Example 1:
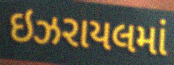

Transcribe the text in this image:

ઇઝરાયલમાં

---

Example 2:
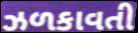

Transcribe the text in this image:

ઝળકાવતી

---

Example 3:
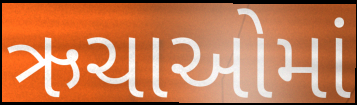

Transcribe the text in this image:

ઋચાઓમાં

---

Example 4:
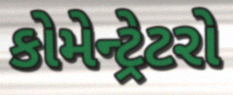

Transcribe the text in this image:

કોમેન્ટ્રેટરો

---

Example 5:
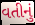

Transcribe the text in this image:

વતીનું